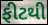
ફીટથી